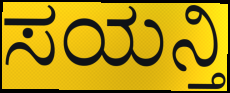
ಸಯನ್ತಿ